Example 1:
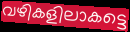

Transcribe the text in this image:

വഴികളിലാകട്ടെ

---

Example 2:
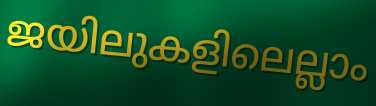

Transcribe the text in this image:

ജയിലുകളിലെല്ലാം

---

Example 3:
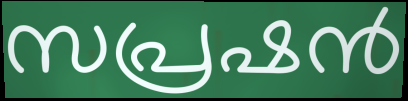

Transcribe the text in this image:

സപ്രഷൻ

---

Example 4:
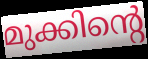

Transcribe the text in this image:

മുക്കിന്റെ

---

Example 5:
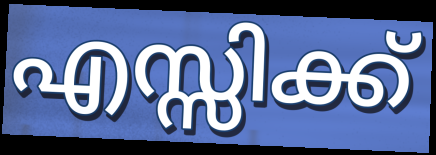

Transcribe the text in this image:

എസ്സിക്ക്